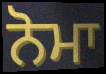
ਨੋਮਾ